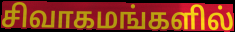
சிவாகமங்களில்